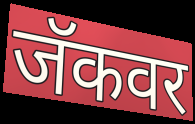
जॅकवर